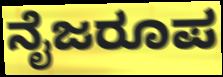
ನೈಜರೂಪ